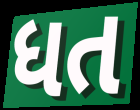
ધત